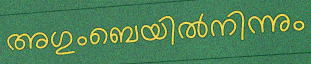
അഗുംബെയിൽനിന്നും